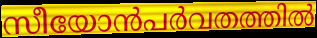
സീയോൻപർവതത്തിൽ